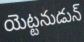
యెట్టనుడున్